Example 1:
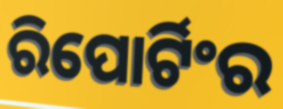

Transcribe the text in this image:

ରିପୋର୍ଟିଂର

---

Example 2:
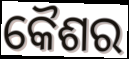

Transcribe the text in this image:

କୈଶର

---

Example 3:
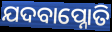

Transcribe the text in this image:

ଯଦବାପ୍ନୋତି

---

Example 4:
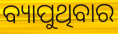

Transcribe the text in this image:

ବ୍ୟାପୁଥିବାର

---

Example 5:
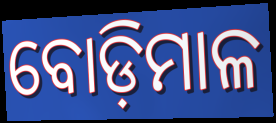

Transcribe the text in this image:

ବୋଡ଼ିମାଳ